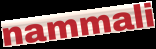
nammali